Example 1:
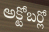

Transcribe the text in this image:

అక్టోబర్లో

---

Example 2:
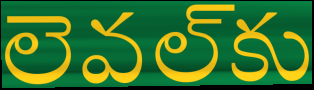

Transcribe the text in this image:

లెవల్‌కు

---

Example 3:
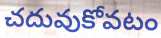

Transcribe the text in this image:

చదువుకోవటం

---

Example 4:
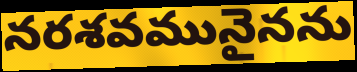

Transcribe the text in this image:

నరశవమునైనను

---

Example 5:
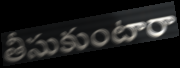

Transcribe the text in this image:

తీసుకుంటారా